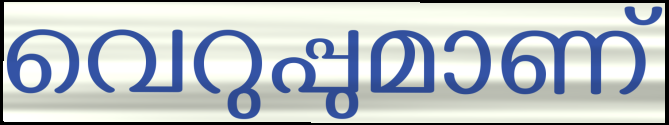
വെറുപ്പുമാണ്